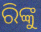
ରିଙ୍କୁ